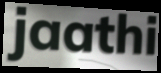
jaathi